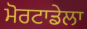
ਮੋਰਟਾਡੇਲਾ